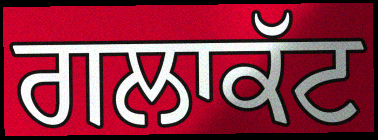
ਗਲਾਕੱਟ